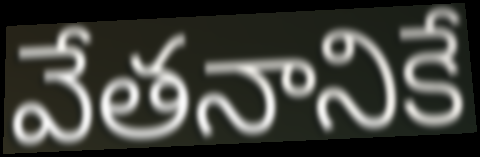
వేతనానికే